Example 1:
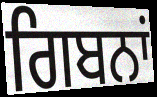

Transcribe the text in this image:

ਗਿਬਨਾਂ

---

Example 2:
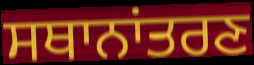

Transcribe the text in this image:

ਸਥਾਨਾਂਤਰਣ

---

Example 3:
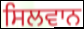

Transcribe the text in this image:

ਸਿਲਵਾਨ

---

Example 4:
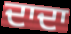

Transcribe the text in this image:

ਦਾਦਾ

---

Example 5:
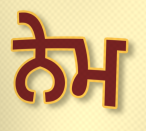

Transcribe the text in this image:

ਨੇਮ